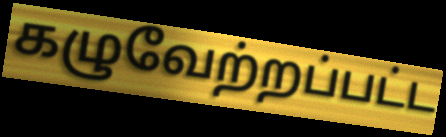
கழுவேற்றப்பட்ட